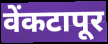
वेंकटापूर